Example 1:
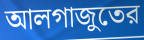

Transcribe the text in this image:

আলগাজুতের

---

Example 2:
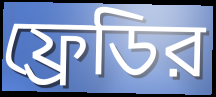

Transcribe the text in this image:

ফ্রেডির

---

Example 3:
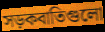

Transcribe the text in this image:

সড়কবাতিগুলো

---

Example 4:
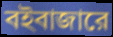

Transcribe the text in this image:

বইবাজারে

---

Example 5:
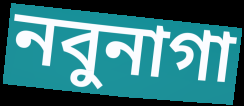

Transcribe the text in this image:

নবুনাগা